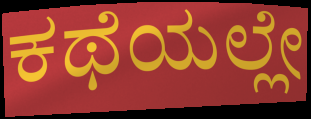
ಕಥೆಯಲ್ಲೇ